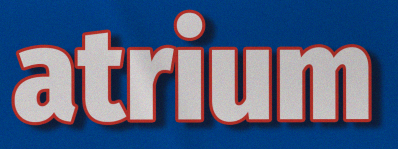
atrium